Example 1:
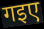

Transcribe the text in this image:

गइए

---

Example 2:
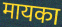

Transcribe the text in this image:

मायका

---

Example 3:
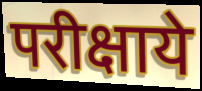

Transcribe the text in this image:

परीक्षाये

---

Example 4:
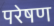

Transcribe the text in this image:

परेषण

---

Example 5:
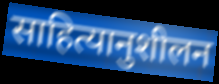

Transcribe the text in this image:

साहित्यानुशीलन